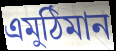
এমুঠিমান